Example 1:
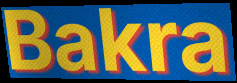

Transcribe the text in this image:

Bakra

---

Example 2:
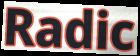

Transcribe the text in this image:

Radic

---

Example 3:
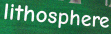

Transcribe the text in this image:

lithosphere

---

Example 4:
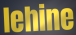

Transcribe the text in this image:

lehine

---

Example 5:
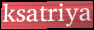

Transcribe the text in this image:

ksatriya